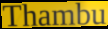
Thambu